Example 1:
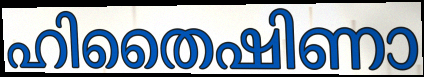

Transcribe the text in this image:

ഹിതൈഷിണാ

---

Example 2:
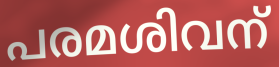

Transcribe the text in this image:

പരമശിവന്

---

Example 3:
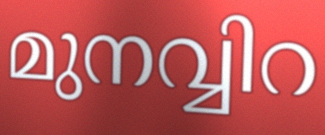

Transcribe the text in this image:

മുനവ്വിറ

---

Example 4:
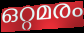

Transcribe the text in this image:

ഒറ്റമരം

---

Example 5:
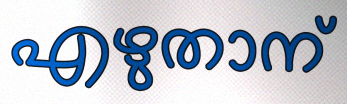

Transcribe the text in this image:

എഴുതാന്